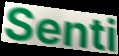
Senti